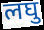
लघु